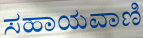
ಸಹಾಯವಾಣಿ